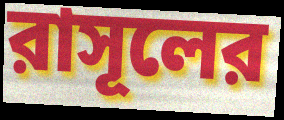
রাসূলের